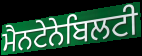
ਮੈਨਟੇਨੇਬਿਲਟੀ